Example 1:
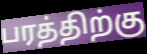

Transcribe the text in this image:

பரத்திற்கு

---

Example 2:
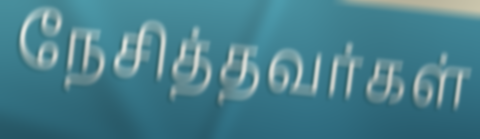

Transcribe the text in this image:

நேசித்தவர்கள்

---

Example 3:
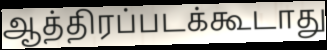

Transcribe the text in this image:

ஆத்திரப்படக்கூடாது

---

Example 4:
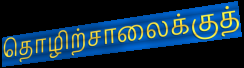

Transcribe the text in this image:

தொழிற்சாலைக்குத்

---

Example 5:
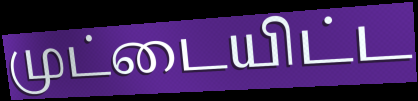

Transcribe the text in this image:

முட்டையிட்ட